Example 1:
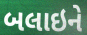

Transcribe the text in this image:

બલાઇને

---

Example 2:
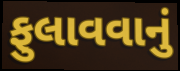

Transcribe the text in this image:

ફુલાવવાનું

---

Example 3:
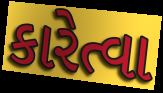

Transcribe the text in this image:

કારેત્વા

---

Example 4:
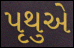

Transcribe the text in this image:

પૃથુએ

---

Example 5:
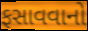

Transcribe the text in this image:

ફસાવવાનો